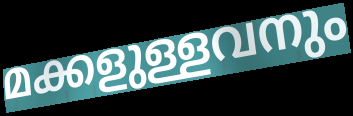
മക്കളുള്ളവനും